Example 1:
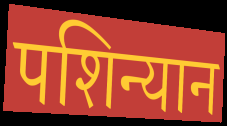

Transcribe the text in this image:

पशिन्यान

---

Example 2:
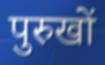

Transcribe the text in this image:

पुरुखों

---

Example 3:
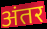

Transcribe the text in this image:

अंतर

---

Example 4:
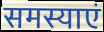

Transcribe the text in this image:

समस्याएं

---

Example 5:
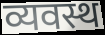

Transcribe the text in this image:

व्यवस्थ